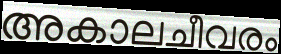
അകാലചീവരം